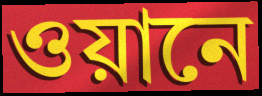
ওয়ানে